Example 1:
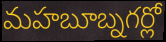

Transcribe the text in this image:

మహబూబ్నగర్లో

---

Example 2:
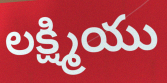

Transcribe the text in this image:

లక్ష్మియు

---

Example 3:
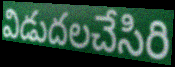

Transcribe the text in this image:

విడుదలచేసిరి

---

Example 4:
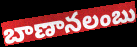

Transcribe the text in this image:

బాణానలంబు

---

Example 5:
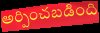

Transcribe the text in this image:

అర్పించబడింది